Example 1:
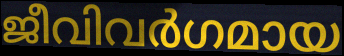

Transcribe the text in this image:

ജീവിവർഗമായ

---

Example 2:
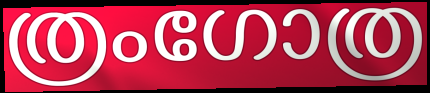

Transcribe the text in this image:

ത്രംഗോത്ര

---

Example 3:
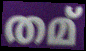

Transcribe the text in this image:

തമ്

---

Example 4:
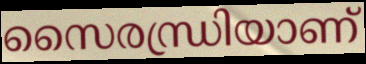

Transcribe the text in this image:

സൈരന്ധ്രിയാണ്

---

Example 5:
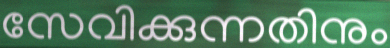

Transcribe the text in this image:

സേവിക്കുന്നതിനും